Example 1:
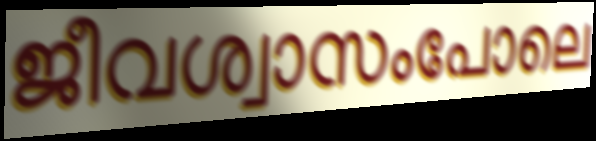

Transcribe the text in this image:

ജീവശ്വാസംപോലെ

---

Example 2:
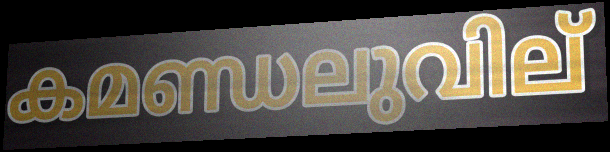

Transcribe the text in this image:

കമണ്ഡലുവില്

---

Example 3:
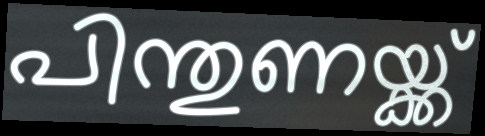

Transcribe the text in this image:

പിന്തുണയ്ക്ക്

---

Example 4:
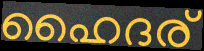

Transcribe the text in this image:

ഹൈദര്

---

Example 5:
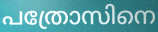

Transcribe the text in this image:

പത്രോസിനെ